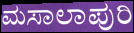
ಮಸಾಲಾಪುರಿ